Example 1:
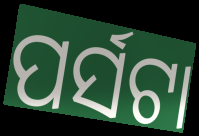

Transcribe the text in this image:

ପର୍ସଟା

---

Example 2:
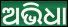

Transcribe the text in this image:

ଅଭିଧା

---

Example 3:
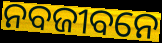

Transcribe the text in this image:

ନବଜୀବନେ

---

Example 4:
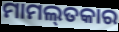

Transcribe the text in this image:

ମାମଲ୍‌ତକାର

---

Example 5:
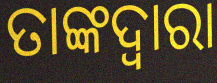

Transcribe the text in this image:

ତାଙ୍କଦ୍ୱାରା